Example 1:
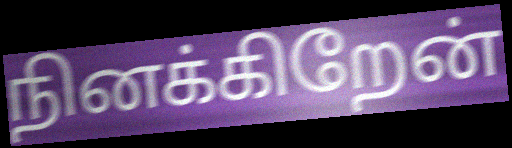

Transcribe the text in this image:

நினக்கிறேன்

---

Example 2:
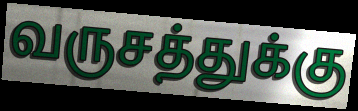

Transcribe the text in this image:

வருசத்துக்கு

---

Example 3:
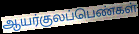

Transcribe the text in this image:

ஆயர்குலப்பெண்கள்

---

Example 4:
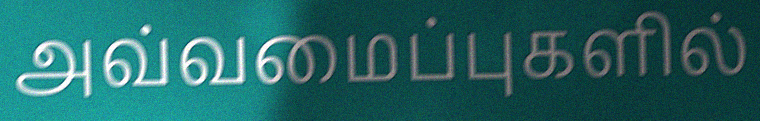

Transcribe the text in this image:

அவ்வமைப்புகளில்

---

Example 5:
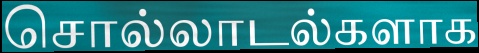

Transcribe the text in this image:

சொல்லாடல்களாக